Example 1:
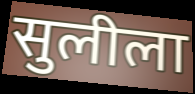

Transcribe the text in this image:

सुलीला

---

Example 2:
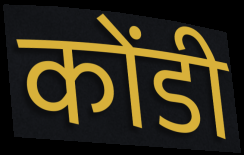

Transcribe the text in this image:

कोंडी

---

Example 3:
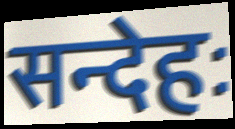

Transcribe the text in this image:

सन्देहः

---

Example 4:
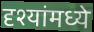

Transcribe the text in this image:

दृश्यांमध्ये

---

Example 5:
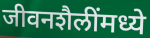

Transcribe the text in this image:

जीवनशैलींमध्ये